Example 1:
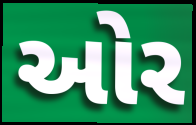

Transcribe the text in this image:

ઓર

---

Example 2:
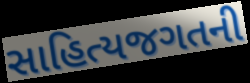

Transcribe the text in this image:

સાહિત્યજગતની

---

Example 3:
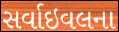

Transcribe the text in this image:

સર્વાઇવલના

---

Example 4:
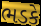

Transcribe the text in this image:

ભડકે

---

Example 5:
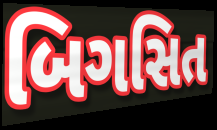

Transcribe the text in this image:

બિગસિત